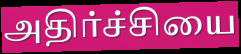
அதிர்ச்சியை